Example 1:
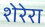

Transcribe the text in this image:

शेरेरा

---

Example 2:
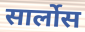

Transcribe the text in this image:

सार्लोस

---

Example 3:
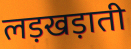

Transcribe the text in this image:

लड़खड़ाती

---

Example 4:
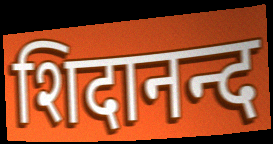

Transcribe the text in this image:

शिदानन्द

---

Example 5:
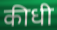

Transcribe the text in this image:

कीधी